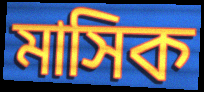
মাসিক